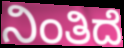
ನಿಂತಿದೆ